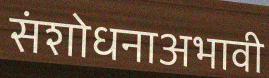
संशोधनाअभावी